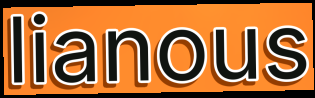
lianous